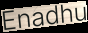
Enadhu